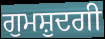
ਗੁਮਸ਼ੁਦਗੀ